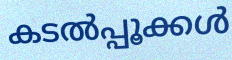
കടൽപ്പൂക്കൾ